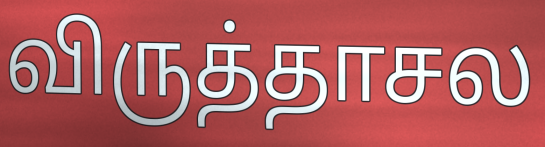
விருத்தாசல